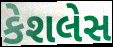
કેશલેસ